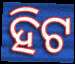
ହିଟ